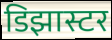
डिझास्टर